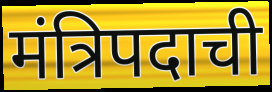
मंत्रिपदाची